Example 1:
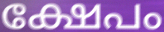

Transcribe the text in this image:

ക്ഷേപം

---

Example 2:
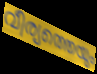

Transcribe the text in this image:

വീര്യത്തെയും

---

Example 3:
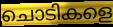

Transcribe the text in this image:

ചൊടികളെ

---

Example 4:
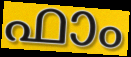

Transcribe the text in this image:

ഫാം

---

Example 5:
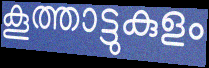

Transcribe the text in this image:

കൂത്താട്ടുകുളം